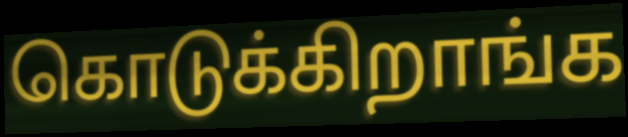
கொடுக்கிறாங்க